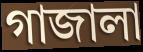
গাজালা